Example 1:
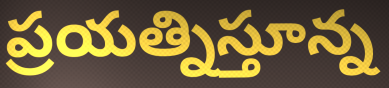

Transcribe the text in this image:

ప్రయత్నిస్తూన్న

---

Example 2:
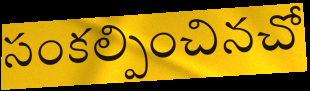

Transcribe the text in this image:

సంకల్పించినచో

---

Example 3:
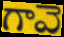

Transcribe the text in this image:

గావె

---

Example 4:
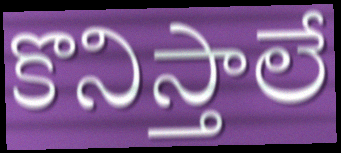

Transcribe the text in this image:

కొనిస్తాలే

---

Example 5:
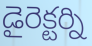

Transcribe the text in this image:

డైరెక్టర్ని